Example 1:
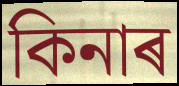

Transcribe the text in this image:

কিনাৰ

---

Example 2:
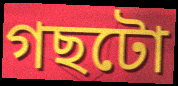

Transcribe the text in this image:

গছটো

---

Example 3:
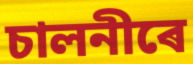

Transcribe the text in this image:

চালনীৰে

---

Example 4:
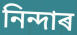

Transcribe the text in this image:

নিন্দাৰ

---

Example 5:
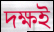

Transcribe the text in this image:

দক্ষই